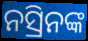
ନସ୍ରିନଙ୍କ